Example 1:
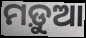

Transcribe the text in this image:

ମଡ଼ୁଆ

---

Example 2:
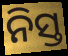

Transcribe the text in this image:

ନିସ୍ତ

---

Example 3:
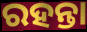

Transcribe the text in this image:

ରହନ୍ତା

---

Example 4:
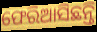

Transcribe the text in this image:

ଫେରିଆସିଛନ୍ତି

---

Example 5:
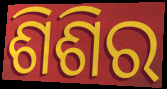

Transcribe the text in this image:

ଶିଶିର